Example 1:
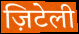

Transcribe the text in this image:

ज़िटेली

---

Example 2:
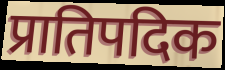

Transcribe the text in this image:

प्रातिपदिक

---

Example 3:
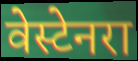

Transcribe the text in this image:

वेस्टेनरा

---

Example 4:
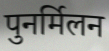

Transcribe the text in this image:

पुनर्मिलन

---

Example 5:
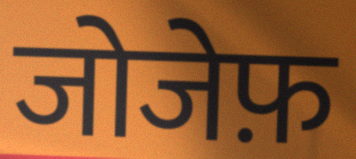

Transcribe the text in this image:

जोजेफ़